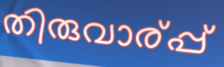
തിരുവാര്പ്പ്